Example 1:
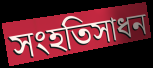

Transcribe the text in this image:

সংহতিসাধন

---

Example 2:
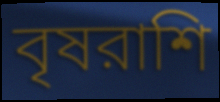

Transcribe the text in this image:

বৃষরাশি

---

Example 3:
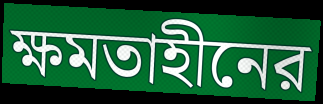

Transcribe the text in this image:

ক্ষমতাহীনের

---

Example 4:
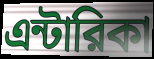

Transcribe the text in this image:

এন্টারিকা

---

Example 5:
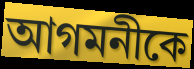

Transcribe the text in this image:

আগমনীকে